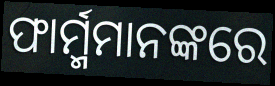
ଫାର୍ମ୍ମମାନଙ୍କରେ